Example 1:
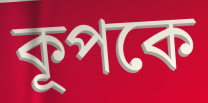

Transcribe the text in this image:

কূপকে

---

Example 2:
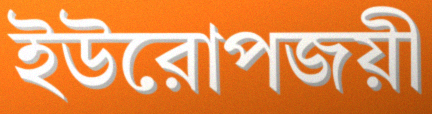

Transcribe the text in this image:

ইউরোপজয়ী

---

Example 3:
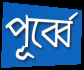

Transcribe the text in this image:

পূর্ব্বে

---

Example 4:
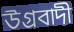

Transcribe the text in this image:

উগ্রবাদী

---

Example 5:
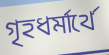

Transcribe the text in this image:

গৃহধর্মার্থে